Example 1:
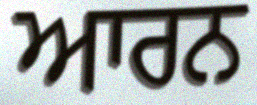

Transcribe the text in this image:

ਆਰਨ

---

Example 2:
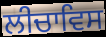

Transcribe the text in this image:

ਲੀਚਾਵਿਸ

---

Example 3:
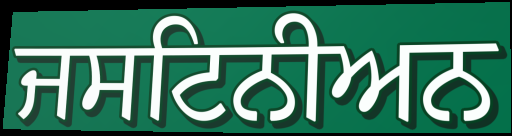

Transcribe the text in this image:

ਜਸਟਿਨੀਅਨ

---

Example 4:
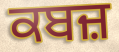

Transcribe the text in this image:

ਕਬਜ਼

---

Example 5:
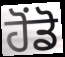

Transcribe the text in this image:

ਹੋਂਡੋ